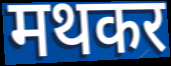
मथकर